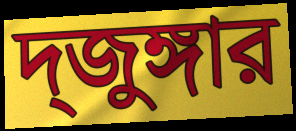
দ্জুঙ্গার